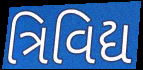
ત્રિવિદ્ય